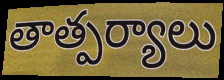
తాత్పర్యాలు